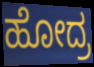
ಹೋದ್ರ